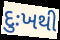
દુઃખથી